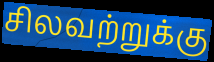
சிலவற்றுக்கு